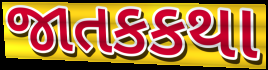
જાતકકથા